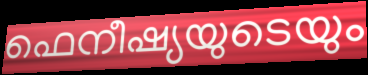
ഫെനീഷ്യയുടെയും